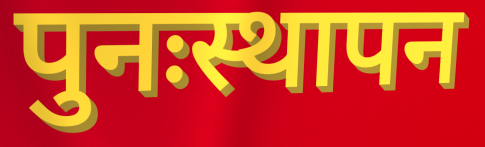
पुनःस्थापन